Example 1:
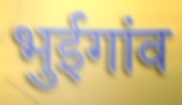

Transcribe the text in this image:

भुईगांव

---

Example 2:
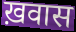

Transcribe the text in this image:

ख़वास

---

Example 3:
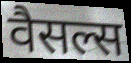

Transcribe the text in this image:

वैसल्स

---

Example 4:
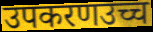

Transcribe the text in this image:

उपकरणउच्च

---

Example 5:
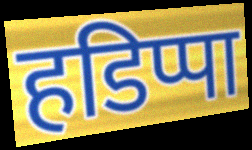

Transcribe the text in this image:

हडिप्पा